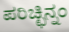
ಪರಿಚ್ಛಿನ್ನಂ